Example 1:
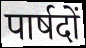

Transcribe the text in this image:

पार्षदों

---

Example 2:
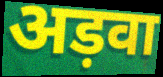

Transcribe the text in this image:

अड़वा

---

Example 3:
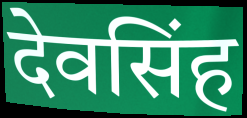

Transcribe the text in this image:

देवसिंह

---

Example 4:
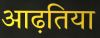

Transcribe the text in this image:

आढ़तिया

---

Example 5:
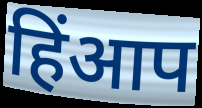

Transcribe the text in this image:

हिंआप